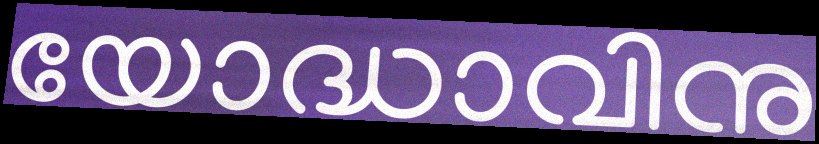
യോദ്ധാവിനു